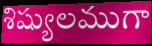
శిష్యులముగా